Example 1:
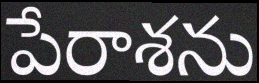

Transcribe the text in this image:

పేరాశను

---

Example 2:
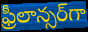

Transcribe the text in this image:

ఫ్రీలాన్సర్‌గా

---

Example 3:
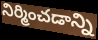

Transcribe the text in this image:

నిర్మించడాన్ని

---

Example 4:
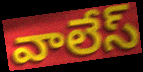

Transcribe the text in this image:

వాలేస్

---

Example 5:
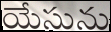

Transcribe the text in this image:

యేసును